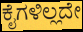
ಕೈಗಳಿಲ್ಲದೇ